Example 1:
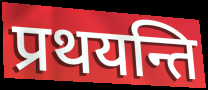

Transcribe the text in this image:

प्रथयन्ति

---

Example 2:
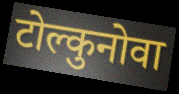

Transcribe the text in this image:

टोल्कुनोवा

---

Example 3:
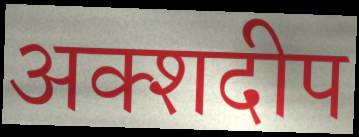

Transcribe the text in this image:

अक्शदीप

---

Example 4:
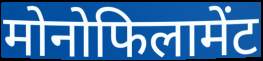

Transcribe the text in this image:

मोनोफिलामेंट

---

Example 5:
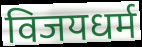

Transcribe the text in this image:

विजयधर्म